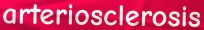
arteriosclerosis